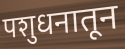
पशुधनातून